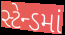
સ્ટેન્ડમાં